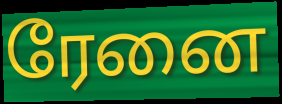
ரேனை